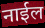
नाईल